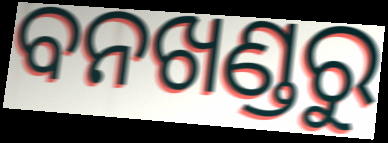
ବନଖଣ୍ଡରୁ